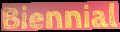
Biennial